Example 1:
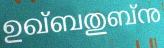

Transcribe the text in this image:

ഉഖ്ബതുബ്നു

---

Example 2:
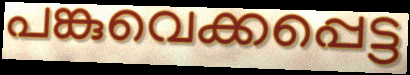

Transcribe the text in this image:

പങ്കുവെക്കപ്പെട്ട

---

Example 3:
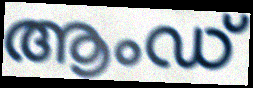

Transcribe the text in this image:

ആംഡ്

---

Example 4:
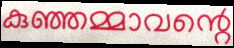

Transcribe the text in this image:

കുഞ്ഞമ്മാവന്റെ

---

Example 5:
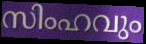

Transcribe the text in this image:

സിംഹവും